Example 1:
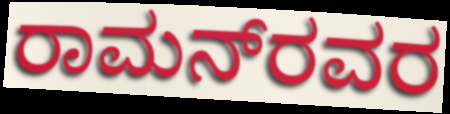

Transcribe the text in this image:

ರಾಮನ್‌ರವರ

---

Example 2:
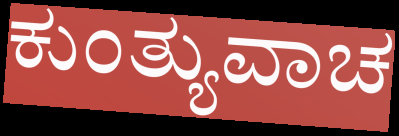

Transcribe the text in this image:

ಕುಂತ್ಯುವಾಚ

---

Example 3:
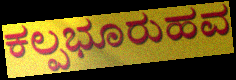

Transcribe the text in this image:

ಕಲ್ಪಭೂರುಹವ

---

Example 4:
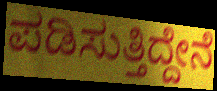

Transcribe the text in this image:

ಪಡಿಸುತ್ತಿದ್ದೇನೆ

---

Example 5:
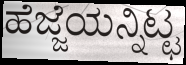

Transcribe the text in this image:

ಹೆಜ್ಜೆಯನ್ನಿಟ್ಟ